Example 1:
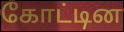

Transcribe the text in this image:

கோட்டின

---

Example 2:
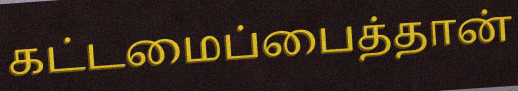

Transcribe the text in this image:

கட்டமைப்பைத்தான்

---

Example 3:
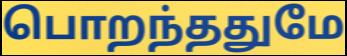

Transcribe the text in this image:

பொறந்ததுமே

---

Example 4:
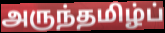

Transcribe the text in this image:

அருந்தமிழ்ப்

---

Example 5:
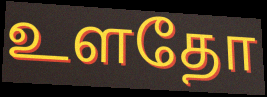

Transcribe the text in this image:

உளதோ